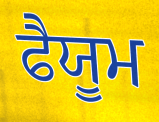
ਫੈਯੂਮ